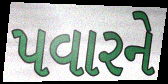
પવારને